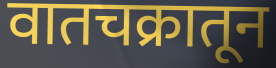
वातचक्रातून